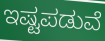
ಇಷ್ಟಪಡುವೆ